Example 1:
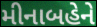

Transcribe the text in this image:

મીનાબહેને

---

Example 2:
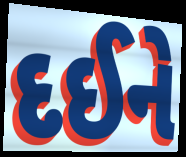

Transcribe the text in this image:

દઈને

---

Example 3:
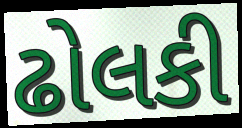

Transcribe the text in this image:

ઢોલકી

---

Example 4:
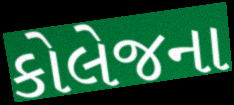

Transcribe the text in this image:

કોલેજના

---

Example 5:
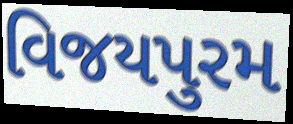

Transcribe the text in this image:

વિજયપુરમ